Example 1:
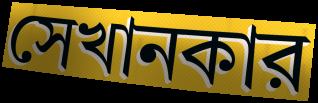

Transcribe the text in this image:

সেখানকার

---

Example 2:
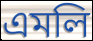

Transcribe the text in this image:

এমলি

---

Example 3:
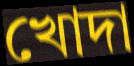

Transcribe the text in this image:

খোদা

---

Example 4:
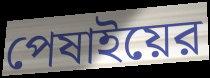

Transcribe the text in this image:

পেষাইয়ের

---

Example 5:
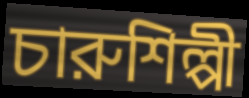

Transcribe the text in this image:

চারুশিল্পী